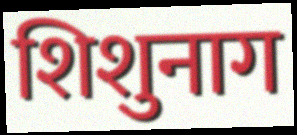
शिशुनाग